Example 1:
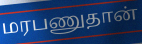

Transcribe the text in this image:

மரபணுதான்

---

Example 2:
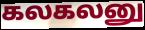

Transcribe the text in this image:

கலகலனு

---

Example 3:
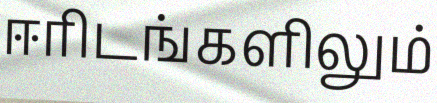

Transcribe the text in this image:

ஈரிடங்களிலும்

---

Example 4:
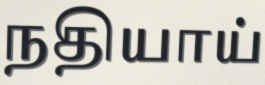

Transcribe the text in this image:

நதியாய்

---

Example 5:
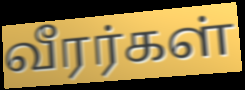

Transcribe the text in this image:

வீரர்கள்